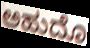
ಅಹುದೊ